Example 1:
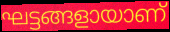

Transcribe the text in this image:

ഘട്ടങ്ങളായാണ്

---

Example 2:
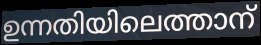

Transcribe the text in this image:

ഉന്നതിയിലെത്താന്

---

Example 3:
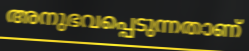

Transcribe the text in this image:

അനുഭവപ്പെടുന്നതാണ്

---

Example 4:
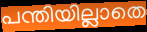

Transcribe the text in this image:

പന്തിയില്ലാതെ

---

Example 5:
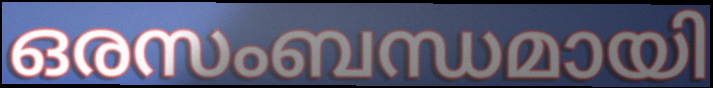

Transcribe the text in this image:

ഒരസംബന്ധമായി